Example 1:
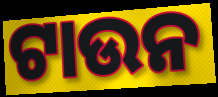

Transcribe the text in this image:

ଟାଉନ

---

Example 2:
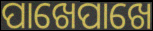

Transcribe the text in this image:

ପାଖେପାଖେ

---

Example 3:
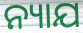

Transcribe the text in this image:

ନ୍ୟାଯ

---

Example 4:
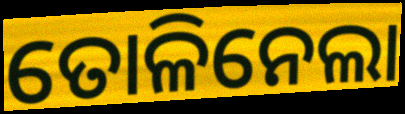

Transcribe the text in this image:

ତୋଳିନେଲା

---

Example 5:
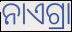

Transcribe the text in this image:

ନାଏଗ୍ରା